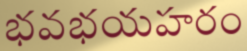
భవభయహరం